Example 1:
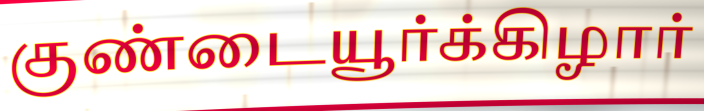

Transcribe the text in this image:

குண்டையூர்க்கிழார்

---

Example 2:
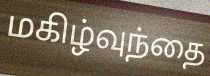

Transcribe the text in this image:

மகிழ்வுந்தை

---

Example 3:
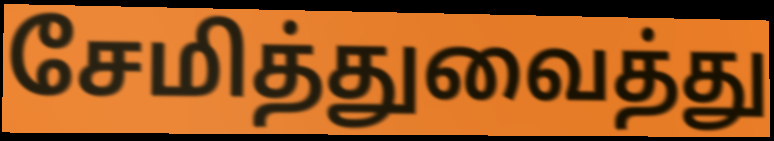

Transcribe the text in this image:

சேமித்துவைத்து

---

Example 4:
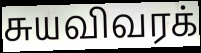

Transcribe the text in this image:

சுயவிவரக்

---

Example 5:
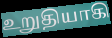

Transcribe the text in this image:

உறுதியாகி